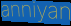
anniyan